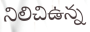
నిలిచిఉన్న